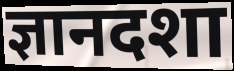
ज्ञानदशा